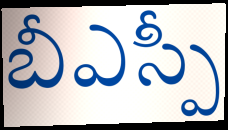
బీఎస్పీ